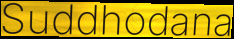
Suddhodana